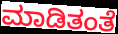
ಮಾಡಿತಂತೆ